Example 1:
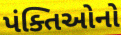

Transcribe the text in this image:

પંક્તિઓનો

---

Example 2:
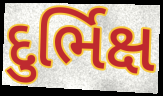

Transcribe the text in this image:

દુર્ભિક્ષ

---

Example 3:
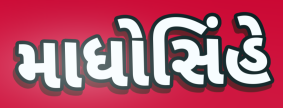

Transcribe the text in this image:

માધોસિંહે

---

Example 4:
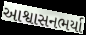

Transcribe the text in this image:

આશ્વાસનભર્યા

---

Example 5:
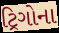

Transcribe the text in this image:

ટ્રિગોના